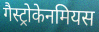
गैस्ट्रोकेनमियस